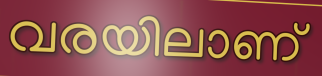
വരയിലാണ്